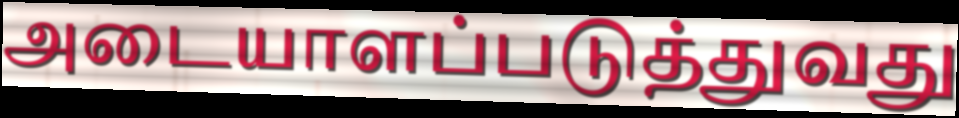
அடையாளப்படுத்துவது